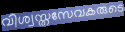
വിശ്വസ്തസേവകരുടെ